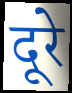
दूरे